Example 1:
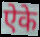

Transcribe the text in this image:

ऐके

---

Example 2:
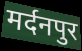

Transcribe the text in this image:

मर्दनपुर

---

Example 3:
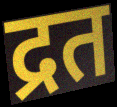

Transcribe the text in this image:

द्रत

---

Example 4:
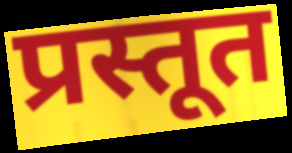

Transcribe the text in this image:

प्रस्तूत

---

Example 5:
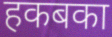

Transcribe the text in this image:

हकबका